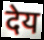
देय